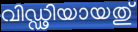
വിഡ്ഢിയായതു്